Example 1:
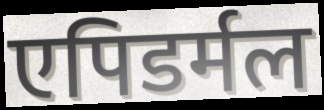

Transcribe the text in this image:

एपिडर्मल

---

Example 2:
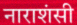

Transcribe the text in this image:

नाराशंसी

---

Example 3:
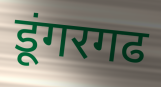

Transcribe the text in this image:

डूंगरगढ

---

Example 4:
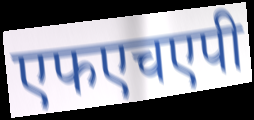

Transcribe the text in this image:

एफएचएपी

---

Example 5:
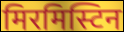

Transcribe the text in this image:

मिरमिस्टिन